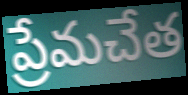
ప్రేమచేత